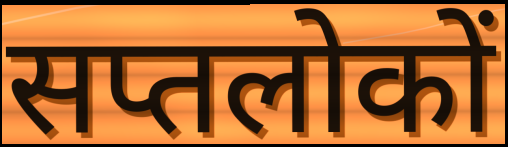
सप्तलोकों